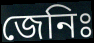
জেনিঃ